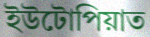
ইউটোপিয়াত